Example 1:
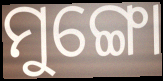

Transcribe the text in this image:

ମୁଙ୍ଗୋ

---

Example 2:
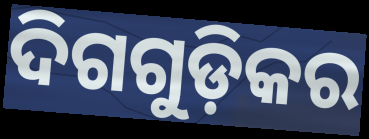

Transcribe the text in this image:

ଦିଗଗୁଡ଼ିକର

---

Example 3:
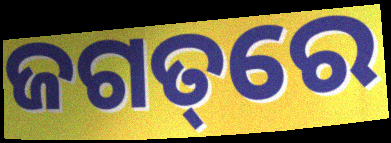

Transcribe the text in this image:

ଜଗତ୍‌ରେ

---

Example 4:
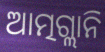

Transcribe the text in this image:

ଆତ୍ମଗ୍ଲାନି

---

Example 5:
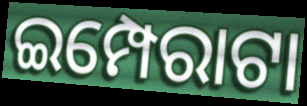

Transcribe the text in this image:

ଇମ୍ପେରାଟା